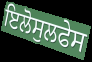
ਇਲੋਸੁਲਫੇਸ